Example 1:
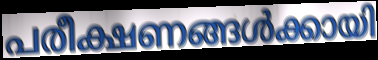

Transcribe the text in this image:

പരീക്ഷണങ്ങൾക്കായി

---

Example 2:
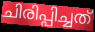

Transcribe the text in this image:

ചിരിപ്പിച്ചത്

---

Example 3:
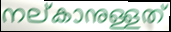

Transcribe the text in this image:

നല്കാനുള്ളത്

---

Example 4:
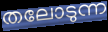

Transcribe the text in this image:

തലോടുന്ന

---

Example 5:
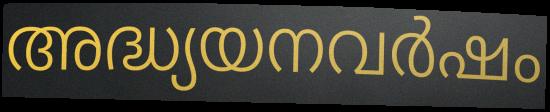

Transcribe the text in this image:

അദ്ധ്യയനവർഷം